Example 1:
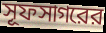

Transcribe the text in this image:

সূফসাগরের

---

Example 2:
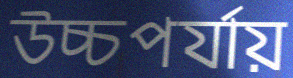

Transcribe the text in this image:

উচ্চপর্যায়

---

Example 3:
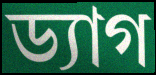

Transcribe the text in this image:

ড্যাগ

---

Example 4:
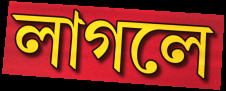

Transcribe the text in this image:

লাগলে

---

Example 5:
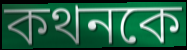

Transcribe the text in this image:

কথনকে